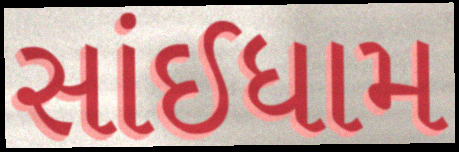
સાંઈધામ